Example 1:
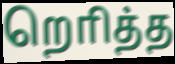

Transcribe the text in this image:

றெரித்த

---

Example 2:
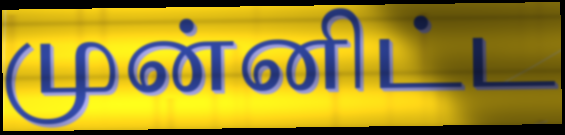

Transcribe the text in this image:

முன்னிட்ட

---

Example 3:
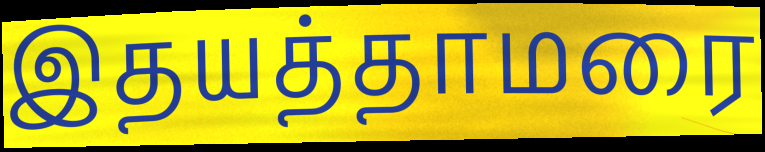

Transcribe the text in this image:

இதயத்தாமரை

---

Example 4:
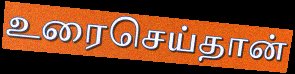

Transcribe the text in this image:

உரைசெய்தான்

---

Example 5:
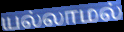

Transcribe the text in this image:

யல்லாமல்